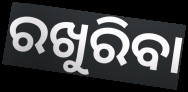
ରଖୁରିବା